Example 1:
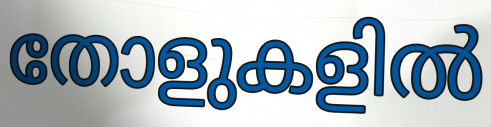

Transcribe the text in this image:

തോളുകളിൽ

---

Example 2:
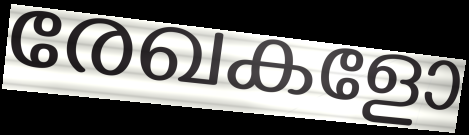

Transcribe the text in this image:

രേഖകളോ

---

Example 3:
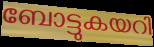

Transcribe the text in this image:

ബോട്ടുകയറി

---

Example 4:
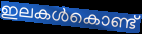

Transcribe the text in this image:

ഇലകൾകൊണ്ട്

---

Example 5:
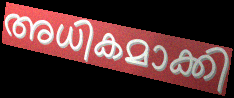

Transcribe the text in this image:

അധികമാക്കി